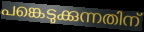
പങ്കെടുക്കുന്നതിന്